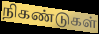
நிகண்டுகள்